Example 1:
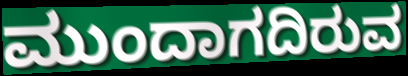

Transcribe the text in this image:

ಮುಂದಾಗದಿರುವ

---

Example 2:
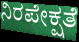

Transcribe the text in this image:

ನಿರಪೇಕ್ಷತೆ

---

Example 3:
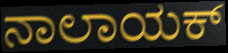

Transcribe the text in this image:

ನಾಲಾಯಕ್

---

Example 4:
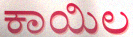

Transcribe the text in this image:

ಕಾಯಿಲ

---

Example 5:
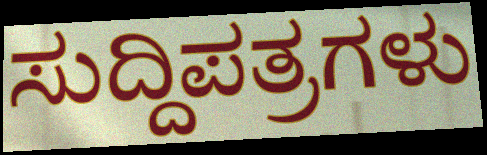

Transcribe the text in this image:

ಸುದ್ದಿಪತ್ರಗಳು